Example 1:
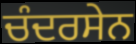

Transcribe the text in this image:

ਚੰਦਰਸੇਨ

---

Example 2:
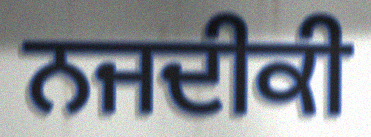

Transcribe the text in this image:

ਨਜਦੀਕੀ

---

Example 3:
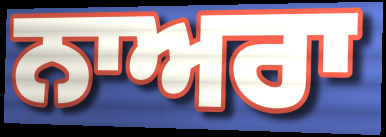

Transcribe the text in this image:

ਨਾਅਰਾ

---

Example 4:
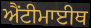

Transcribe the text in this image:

ਐਂਟੀਮਾਈਥ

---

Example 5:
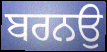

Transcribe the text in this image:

ਬਰਨਉ